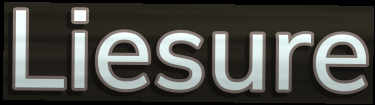
Liesure